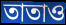
তাতাও